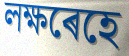
লক্ষৰেহে